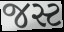
જસ્ટ